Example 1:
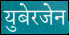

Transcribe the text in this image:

युबेरजेन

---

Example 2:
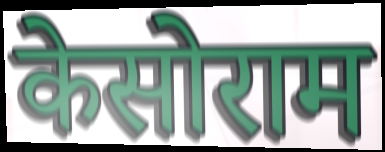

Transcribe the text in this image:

केसोराम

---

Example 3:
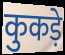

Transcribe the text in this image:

कुकड़े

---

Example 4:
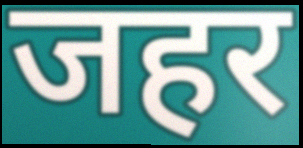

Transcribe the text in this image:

जहर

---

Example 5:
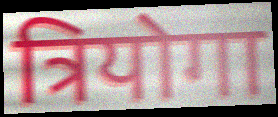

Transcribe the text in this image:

त्रियोगा